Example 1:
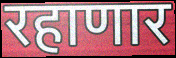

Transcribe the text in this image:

रहाणार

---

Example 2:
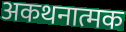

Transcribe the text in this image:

अकथनात्मक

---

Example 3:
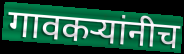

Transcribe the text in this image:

गावकऱ्यांनीच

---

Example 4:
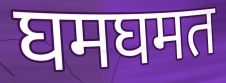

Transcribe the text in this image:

घमघमत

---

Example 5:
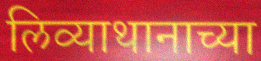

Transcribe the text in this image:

लिव्याथानाच्या